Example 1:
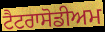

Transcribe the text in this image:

ਟੈਟਰਾਸੋਡੀਅਮ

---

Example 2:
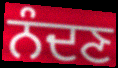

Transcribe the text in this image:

ਨੰਦਣ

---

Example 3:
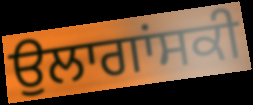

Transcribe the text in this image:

ਉਲਾਗਾਂਸਕੀ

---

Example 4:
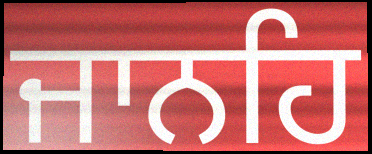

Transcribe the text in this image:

ਜਾਨਹਿ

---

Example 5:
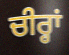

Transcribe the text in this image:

ਚੀਰ੍ਹਾਂ